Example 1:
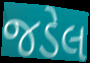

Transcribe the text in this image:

જડેલ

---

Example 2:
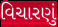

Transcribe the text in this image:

વિચારણું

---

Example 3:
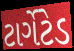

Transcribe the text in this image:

ટાર્ગેટેડ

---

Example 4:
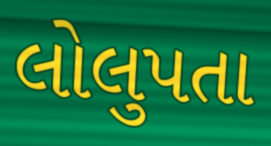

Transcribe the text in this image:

લોલુપતા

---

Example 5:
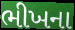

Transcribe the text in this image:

ભીખના